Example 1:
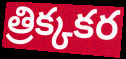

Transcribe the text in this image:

త్రిక్కకర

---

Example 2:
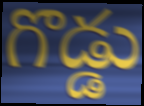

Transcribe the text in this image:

గొడ్డు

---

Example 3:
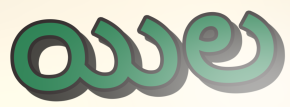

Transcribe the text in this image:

యిల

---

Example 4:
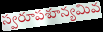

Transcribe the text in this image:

స్వరూపశూన్యమివ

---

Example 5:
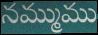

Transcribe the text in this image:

నమ్ముము